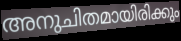
അനുചിതമായിരിക്കും